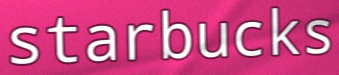
starbucks